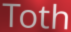
Toth